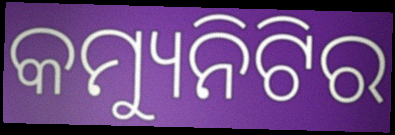
କମ୍ୟୁନିଟିର